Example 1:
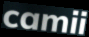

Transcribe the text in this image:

camii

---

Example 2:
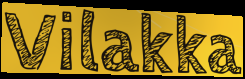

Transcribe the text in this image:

Vilakka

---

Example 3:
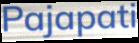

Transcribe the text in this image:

Pajapati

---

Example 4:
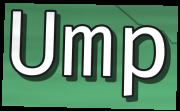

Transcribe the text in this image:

Ump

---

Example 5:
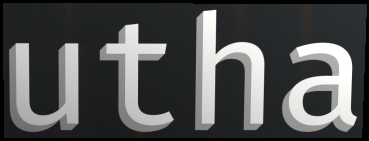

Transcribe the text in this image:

utha